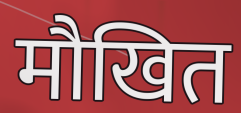
मौखित